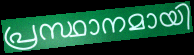
പ്രസ്ഥാനമായി